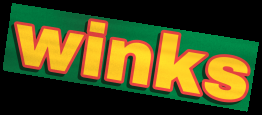
winks